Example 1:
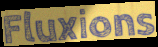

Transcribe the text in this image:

Fluxions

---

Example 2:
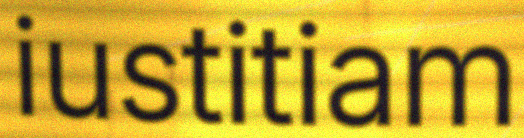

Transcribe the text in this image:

iustitiam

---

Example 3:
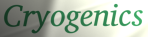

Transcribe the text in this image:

Cryogenics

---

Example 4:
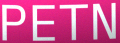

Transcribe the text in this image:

PETN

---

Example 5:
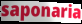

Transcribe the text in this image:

saponaria